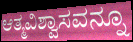
ಆತ್ಮವಿಶ್ವಾಸವನ್ನೂ